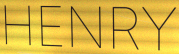
HENRY